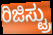
ರಿಜಿಸ್ಟ್ರು